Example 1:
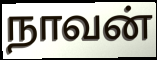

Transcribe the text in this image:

நாவன்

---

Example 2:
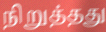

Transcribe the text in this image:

நிறுத்தது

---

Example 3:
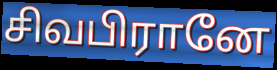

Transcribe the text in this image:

சிவபிரானே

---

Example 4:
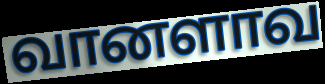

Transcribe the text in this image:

வானளாவ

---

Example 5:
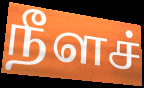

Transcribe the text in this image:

நீளச்